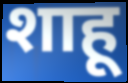
शाहू